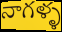
నాగళ్ళ